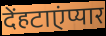
देंहटाएंप्यार